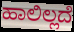
ಹಾಲಿಲ್ಲದೆ